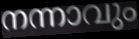
നന്നാവും